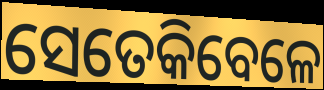
ସେତେକିବେଳେ